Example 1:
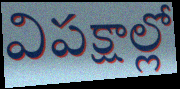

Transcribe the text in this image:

విపక్షాల్లో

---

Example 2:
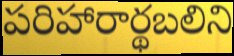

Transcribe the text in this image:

పరిహారార్థబలిని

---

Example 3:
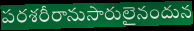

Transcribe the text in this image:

పరశరీరానుసారులైనందున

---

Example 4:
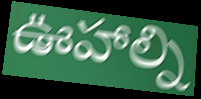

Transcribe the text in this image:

ఊహాల్ని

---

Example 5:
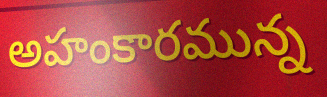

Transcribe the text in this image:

అహంకారమున్న